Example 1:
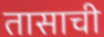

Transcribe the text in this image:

तासाची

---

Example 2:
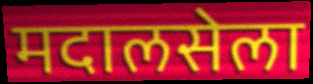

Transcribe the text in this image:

मदालसेला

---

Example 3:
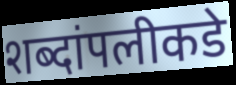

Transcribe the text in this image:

शब्दांपलीकडे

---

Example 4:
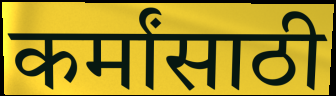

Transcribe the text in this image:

कर्मांसाठी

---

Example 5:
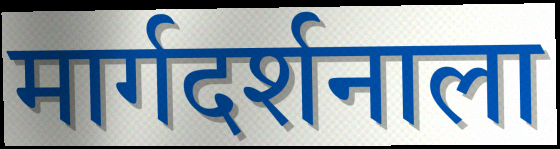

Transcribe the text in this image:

मार्गदर्शनाला